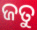
ଜତୁ